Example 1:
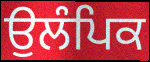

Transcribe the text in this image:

ਉਲੰਪਿਕ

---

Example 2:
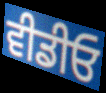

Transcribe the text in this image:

ਵੀਡੀਓ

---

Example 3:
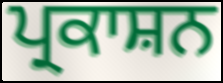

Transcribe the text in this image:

ਪ੍ਰਕਾਸ਼ਨ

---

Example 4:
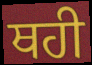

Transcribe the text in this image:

ਥਹੀ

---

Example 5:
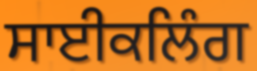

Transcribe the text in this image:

ਸਾਈਕਲਿੰਗ